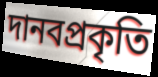
দানবপ্রকৃতি